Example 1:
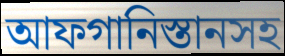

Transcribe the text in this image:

আফগানিস্তানসহ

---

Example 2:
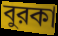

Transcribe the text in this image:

বুরকা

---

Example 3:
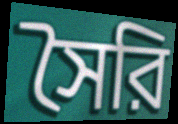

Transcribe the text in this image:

সৈরি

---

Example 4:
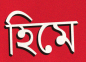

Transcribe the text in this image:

হিমে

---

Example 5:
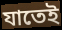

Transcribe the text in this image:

যাতেই